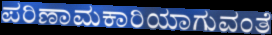
ಪರಿಣಾಮಕಾರಿಯಾಗುವಂತೆ